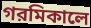
গরমিকালে